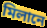
মিলানে